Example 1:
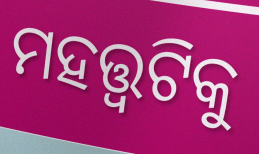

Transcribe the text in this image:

ମହତ୍ତ୍ୱଟିକୁ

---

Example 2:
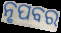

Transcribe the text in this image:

ନୃପବର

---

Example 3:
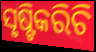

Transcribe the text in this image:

ସୃଷ୍ଟିକରିଚି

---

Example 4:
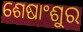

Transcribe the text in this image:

ଶେଷାଂଶୁର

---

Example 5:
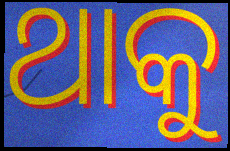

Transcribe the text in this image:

ଥାକୁ